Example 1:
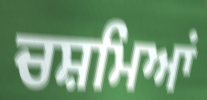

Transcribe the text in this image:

ਚਸ਼ਮਿਆਂ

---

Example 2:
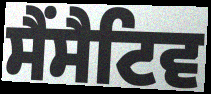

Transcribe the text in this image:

ਸੈਂਸੈਟਿਵ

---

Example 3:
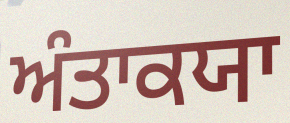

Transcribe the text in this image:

ਅੰਤਾਕਯਾ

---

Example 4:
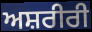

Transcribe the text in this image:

ਅਸ਼ਰੀਰੀ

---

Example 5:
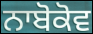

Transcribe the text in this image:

ਨਾਬੋਕੋਵ